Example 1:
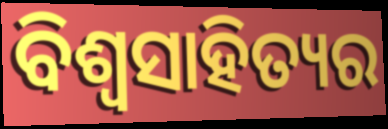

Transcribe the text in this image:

ବିଶ୍ଵସାହିତ୍ୟର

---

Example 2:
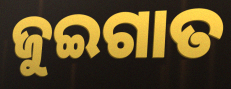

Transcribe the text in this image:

ଜୁଇଗାତ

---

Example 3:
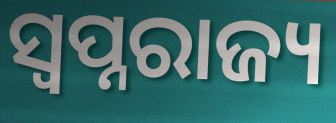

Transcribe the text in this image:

ସ୍ୱପ୍ନରାଜ୍ୟ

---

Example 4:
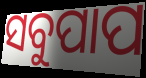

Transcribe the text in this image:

ସବୁପାପ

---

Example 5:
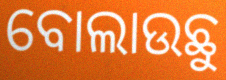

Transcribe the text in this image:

ବୋଲାଉଛୁ